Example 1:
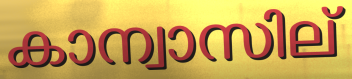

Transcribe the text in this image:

കാന്വാസില്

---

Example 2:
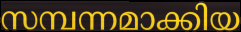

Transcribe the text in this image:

സമ്പന്നമാക്കിയ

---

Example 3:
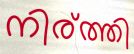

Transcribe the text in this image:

നിര്ത്തി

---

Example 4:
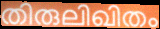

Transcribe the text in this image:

തിരുലിഖിതം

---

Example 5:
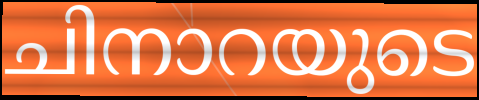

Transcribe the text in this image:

ചിനാറയുടെ